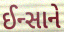
ઈન્સાને